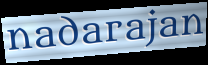
nadarajan